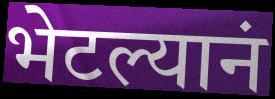
भेटल्यानं